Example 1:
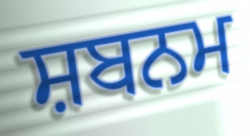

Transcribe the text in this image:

ਸ਼ਬਨਮ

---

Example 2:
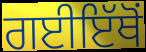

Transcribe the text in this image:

ਗਈਇੱਥੋਂ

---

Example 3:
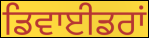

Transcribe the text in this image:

ਡਿਵਾਈਡਰਾਂ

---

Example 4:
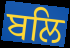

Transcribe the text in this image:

ਬਲਿ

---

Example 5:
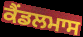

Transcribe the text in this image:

ਕੈਂਡਲਮਾਸ